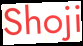
Shoji